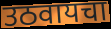
उठवायचा